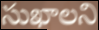
సుఖాలని